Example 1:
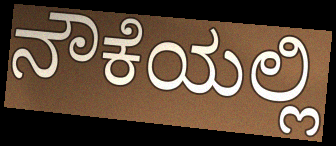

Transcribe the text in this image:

ನೌಕೆಯಲ್ಲಿ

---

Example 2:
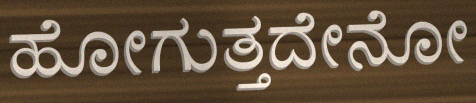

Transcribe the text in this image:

ಹೋಗುತ್ತದೇನೋ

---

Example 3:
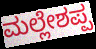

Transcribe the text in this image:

ಮಲ್ಲೇಶಪ್ಪ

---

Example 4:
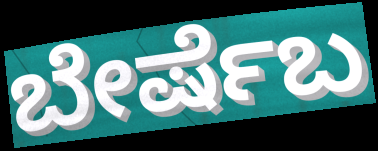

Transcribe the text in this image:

ಬೇರ್ಷೆಬ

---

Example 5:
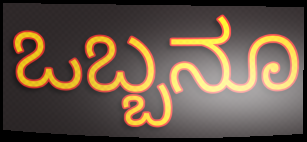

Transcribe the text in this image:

ಒಬ್ಬನೂ